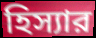
হিস্যার